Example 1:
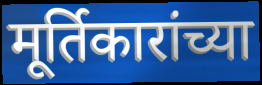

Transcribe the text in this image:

मूर्तिकारांच्या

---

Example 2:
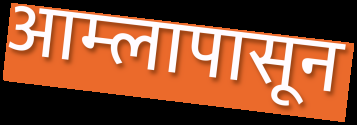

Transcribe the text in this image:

आम्लापासून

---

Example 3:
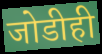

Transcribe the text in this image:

जोडीही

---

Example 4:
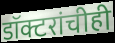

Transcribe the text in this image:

डॉक्टरांचीही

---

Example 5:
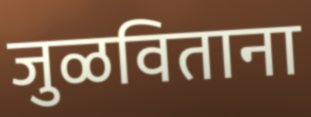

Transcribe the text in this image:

जुळविताना